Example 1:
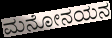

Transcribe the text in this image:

ಮನೋನಯನ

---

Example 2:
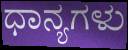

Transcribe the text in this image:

ಧಾನ್ಯಗಳು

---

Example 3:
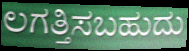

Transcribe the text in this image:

ಲಗತ್ತಿಸಬಹುದು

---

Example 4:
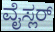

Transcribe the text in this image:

ವೈಸ್ಲರ್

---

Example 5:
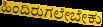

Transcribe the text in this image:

ಹಿಂದಿರುಗಲೇಬೇಕು